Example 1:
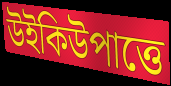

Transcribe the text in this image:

উইকিউপাত্তে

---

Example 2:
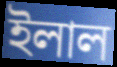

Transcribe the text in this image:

ইলাল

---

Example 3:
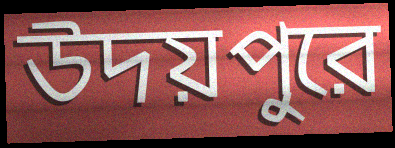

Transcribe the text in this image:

উদয়পুরে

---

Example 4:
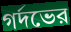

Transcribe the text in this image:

গর্দভের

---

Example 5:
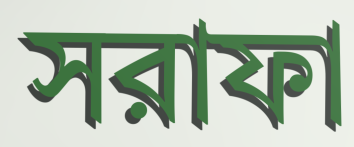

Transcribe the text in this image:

সরাফা